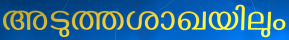
അടുത്തശാഖയിലും